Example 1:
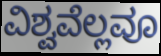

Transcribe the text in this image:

ವಿಶ್ವವೆಲ್ಲವೂ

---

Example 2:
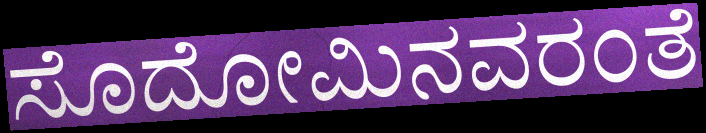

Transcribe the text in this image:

ಸೊದೋಮಿನವರಂತೆ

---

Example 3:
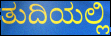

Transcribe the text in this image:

ತುದಿಯಲ್ಲಿ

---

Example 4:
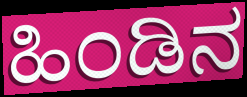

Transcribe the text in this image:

ಹಿಂಡಿನ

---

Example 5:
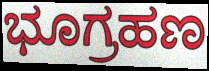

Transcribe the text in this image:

ಭೂಗ್ರಹಣ